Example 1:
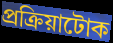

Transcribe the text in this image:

প্ৰক্ৰিয়াটোক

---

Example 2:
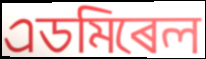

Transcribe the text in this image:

এডমিৰেল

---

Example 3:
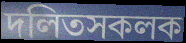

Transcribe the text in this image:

দলিতসকলক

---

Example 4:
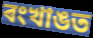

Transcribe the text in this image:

ৰংখাঙত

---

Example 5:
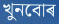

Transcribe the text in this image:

খুনবোৰ